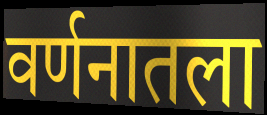
वर्णनातला